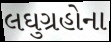
લઘુગ્રહોના